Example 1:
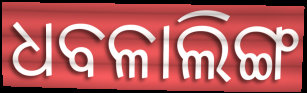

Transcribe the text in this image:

ଧବଳାଲିଙ୍ଗ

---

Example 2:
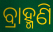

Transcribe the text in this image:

ବ୍ରାହ୍ମଣି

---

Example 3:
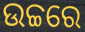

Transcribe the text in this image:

ଉଚ୍ଚରେ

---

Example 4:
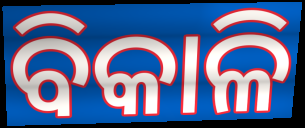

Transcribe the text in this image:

ବିକାଳି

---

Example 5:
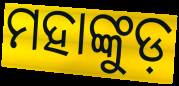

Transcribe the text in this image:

ମହାଙ୍କୁଡ଼